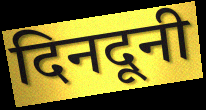
दिनदूनी